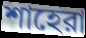
শাহেরা